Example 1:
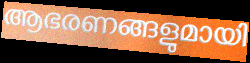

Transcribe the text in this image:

ആഭരണങ്ങളുമായി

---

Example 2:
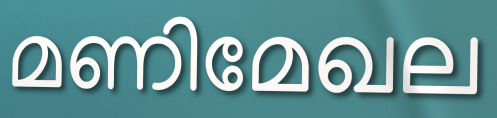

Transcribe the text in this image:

മണിമേഖല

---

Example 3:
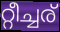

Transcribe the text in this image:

റ്റീച്ചര്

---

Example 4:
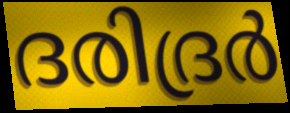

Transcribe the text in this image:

ദരിദ്രർ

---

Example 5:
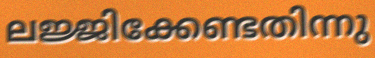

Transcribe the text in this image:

ലജ്ജിക്കേണ്ടതിന്നു